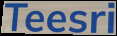
Teesri